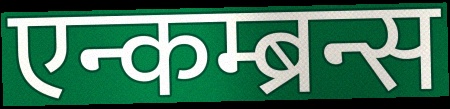
एन्कम्ब्रन्स